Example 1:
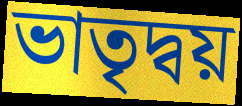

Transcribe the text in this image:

ভাতৃদ্বয়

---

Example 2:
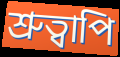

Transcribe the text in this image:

শ্রুত্বাপি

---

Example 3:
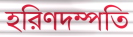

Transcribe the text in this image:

হরিণদম্পতি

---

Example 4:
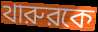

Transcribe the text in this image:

থারুরকে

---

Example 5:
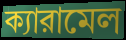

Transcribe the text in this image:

ক্যারামেল